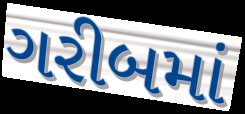
ગરીબમાં